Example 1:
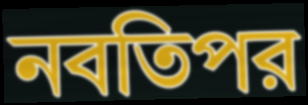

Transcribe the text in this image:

নবতিপর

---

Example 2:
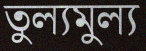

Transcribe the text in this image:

তুল্যমুল্য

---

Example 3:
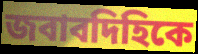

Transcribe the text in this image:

জবাবদিহিকে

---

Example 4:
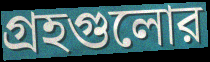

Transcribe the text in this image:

গ্রহগুলোর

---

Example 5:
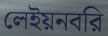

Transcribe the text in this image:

লেইয়নবরি